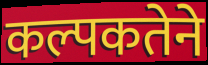
कल्पकतेने